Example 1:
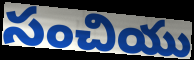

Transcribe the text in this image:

సంచియు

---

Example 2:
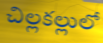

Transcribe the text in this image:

చిల్లకల్లులో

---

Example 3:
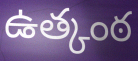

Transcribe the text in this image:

ఉత్కంఠ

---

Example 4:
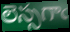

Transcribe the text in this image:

లెస్సగాఁ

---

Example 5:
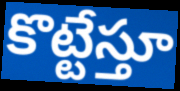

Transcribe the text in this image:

కొట్టేస్తూ